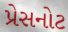
પ્રેસનોટ